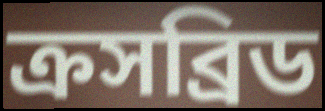
ক্রসব্রিড